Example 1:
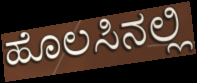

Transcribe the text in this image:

ಹೊಲಸಿನಲ್ಲಿ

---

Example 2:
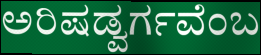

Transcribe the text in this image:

ಅರಿಷಡ್ವರ್ಗವೆಂಬ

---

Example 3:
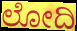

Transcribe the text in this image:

ಲೋದಿ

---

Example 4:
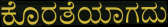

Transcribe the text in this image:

ಕೊರತೆಯಾಗದು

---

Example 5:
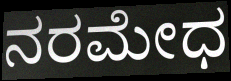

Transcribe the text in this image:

ನರಮೇಧ